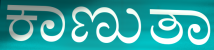
ಕಾಣುತಾ